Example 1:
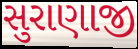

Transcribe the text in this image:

સુરાણાજી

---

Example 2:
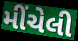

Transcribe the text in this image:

મીંચેલી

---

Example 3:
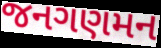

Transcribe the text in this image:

જનગણમન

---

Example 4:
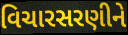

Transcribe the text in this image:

વિચારસરણીને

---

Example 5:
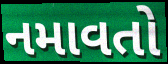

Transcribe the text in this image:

નમાવતો